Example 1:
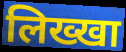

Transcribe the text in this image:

लिख्खा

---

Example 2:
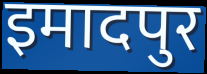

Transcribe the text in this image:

इमादपुर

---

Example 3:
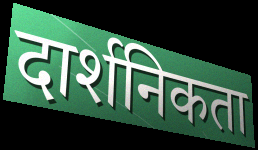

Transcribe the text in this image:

दार्शनिकता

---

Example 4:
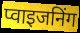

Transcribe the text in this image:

प्वाइजनिंग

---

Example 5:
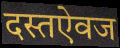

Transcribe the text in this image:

दस्तऐवज